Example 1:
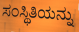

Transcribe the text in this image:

ಸಂಸ್ಥಿತಿಯನ್ನು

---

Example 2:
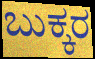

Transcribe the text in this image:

ಬುಕ್ಕರ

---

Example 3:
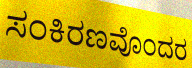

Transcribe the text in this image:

ಸಂಕಿರಣವೊಂದರ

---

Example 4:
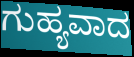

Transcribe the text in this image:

ಗುಹ್ಯವಾದ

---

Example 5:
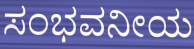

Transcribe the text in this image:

ಸಂಭವನೀಯ